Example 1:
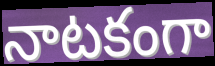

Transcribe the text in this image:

నాటకంగా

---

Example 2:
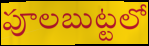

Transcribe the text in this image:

పూలబుట్టలో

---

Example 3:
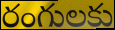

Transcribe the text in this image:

రంగులకు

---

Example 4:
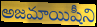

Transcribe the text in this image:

అజమాయిషీని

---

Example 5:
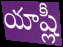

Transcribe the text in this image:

యాష్లీ